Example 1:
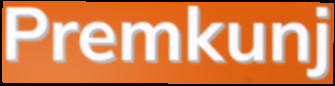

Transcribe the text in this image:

Premkunj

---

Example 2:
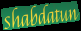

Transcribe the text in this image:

shabdatun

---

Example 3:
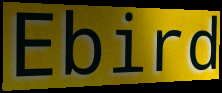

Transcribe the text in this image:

Ebird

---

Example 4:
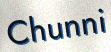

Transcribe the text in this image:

Chunni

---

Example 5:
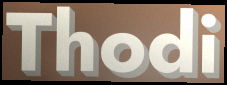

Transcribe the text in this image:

Thodi